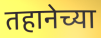
तहानेच्या